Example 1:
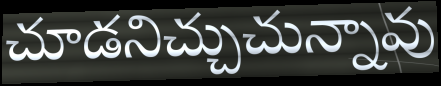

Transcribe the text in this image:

చూడనిచ్చుచున్నావు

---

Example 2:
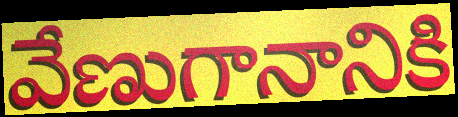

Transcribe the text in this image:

వేణుగానానికి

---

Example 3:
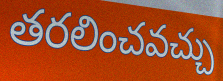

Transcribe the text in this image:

తరలించవచ్చు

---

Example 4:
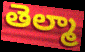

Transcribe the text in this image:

తెల్మా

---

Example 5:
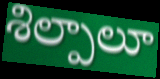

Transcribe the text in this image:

శిల్పాలూ